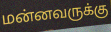
மன்னவருக்கு